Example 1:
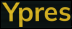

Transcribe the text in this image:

Ypres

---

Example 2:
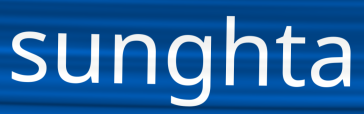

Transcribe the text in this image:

sunghta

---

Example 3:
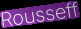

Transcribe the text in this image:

Rousseff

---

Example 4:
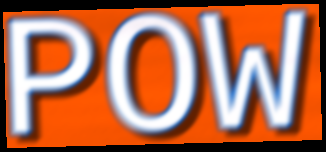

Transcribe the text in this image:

POW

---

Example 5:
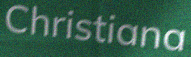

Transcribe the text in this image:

Christiana